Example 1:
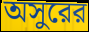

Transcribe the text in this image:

অসুরের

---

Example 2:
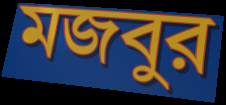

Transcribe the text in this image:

মজবুর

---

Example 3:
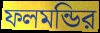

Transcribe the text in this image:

ফলমন্ডির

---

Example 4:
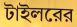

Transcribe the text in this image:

টাইলরের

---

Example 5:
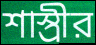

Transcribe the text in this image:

শাস্ত্রীর